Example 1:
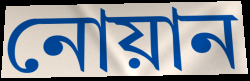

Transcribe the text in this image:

নোয়ান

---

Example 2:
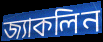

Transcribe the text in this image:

জ্যাকলিন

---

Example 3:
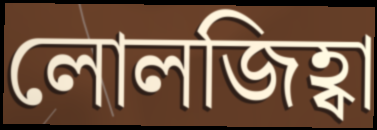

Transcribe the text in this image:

লোলজিহ্বা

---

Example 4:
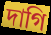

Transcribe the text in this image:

দাগি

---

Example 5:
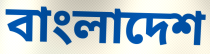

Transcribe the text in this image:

বাংলাদেশ